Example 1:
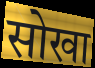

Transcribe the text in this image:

सोखा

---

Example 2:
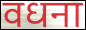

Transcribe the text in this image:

वधना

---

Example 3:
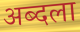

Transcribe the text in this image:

अब्दला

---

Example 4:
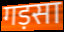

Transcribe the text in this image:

गड़सा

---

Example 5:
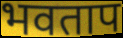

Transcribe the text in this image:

भवताप